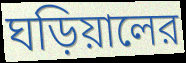
ঘড়িয়ালের